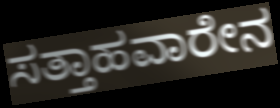
ಸತ್ತಾಹವಾರೇನ